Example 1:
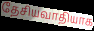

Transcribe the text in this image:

தேசியவாதியாக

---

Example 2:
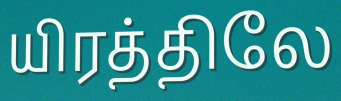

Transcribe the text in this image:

யிரத்திலே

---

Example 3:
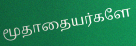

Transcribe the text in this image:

மூதாதையர்களே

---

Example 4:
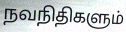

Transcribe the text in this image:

நவநிதிகளும்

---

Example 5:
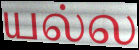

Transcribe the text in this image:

யல்ல